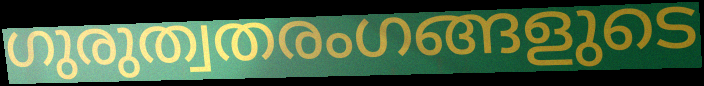
ഗുരുത്വതരംഗങ്ങളുടെ